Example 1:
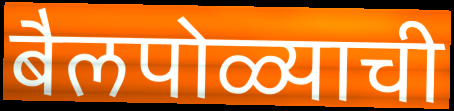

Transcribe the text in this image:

बैलपोळ्याची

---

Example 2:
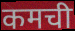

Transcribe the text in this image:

कमची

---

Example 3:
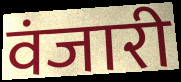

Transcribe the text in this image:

वंजारी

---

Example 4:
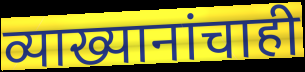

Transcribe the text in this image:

व्याख्यानांचाही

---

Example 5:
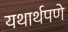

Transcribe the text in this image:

यथार्थपणे